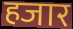
हजार